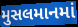
મુસલમાનમાં